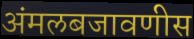
अंमलबजावणीस